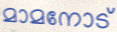
മാമനോട്